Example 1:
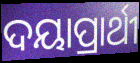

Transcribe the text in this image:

ଦୟାପ୍ରାର୍ଥୀ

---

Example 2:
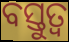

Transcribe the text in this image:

ବସ୍ତୁତ୍ବ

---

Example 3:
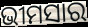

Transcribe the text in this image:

ଭୀମସାର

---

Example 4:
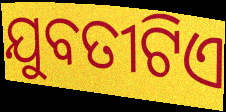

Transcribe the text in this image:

ଯୁବତୀଟିଏ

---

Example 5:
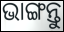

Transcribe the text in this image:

ଭାଙ୍ଗନ୍ତୁ